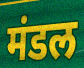
मंडल